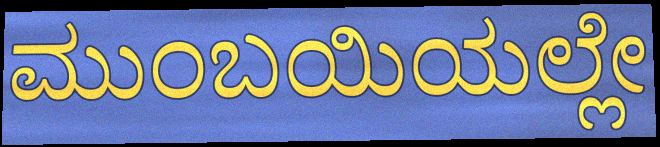
ಮುಂಬಯಿಯಲ್ಲೇ